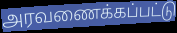
அரவணைக்கப்பட்டு